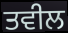
ਤਵੀਲ